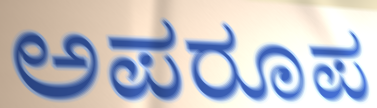
ಅಪರೂಪ